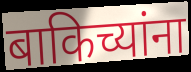
बाकिच्यांना